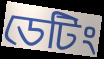
ডেটিং